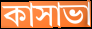
কাসাভা